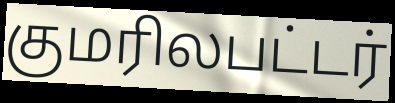
குமரிலபட்டர்